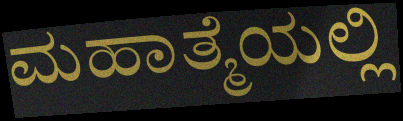
ಮಹಾತ್ಮೆಯಲ್ಲಿ